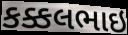
કક્કલભાઇ